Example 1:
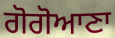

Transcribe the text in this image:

ਗੋਗੋਆਣਾ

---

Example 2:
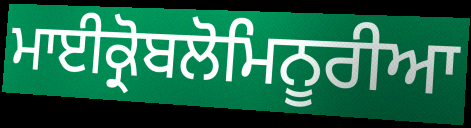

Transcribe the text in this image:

ਮਾਈਕ੍ਰੋਬਲੋਮਿਨੂਰੀਆ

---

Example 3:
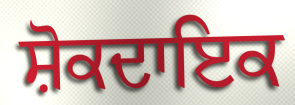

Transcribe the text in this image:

ਸ਼ੋਕਦਾਇਕ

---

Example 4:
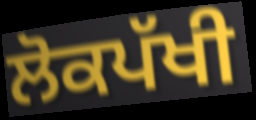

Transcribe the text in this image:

ਲੋਕਪੱਖੀ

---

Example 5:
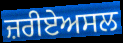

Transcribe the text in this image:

ਜ਼ਰੀਏਅਸਲ